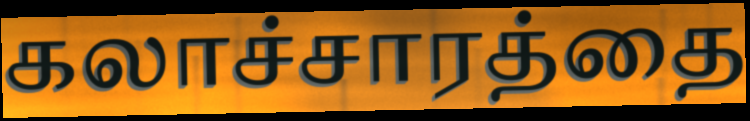
கலாச்சாரத்தை